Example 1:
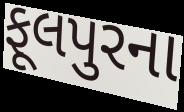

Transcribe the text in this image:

ફૂલપુરના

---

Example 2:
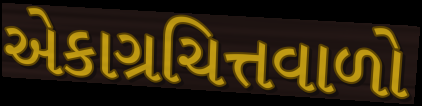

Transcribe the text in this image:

એકાગ્રચિત્તવાળો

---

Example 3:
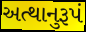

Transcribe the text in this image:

અત્થાનુરૂપં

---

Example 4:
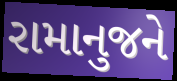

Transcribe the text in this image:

રામાનુજને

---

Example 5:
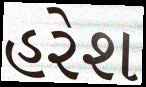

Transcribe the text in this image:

હરેશ